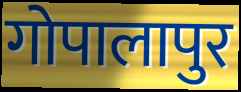
गोपालापुर